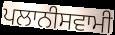
ਪਲਾਨੀਸਵਾਮੀ